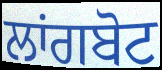
ਲਾਂਗਬੋਟ